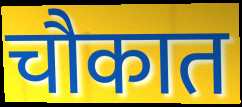
चौकात